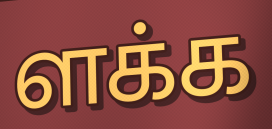
ளக்க